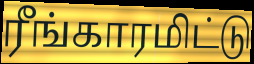
ரீங்காரமிட்டு